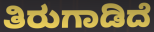
ತಿರುಗಾಡಿದೆ